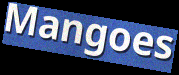
Mangoes